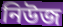
নিউজ